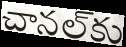
చానల్‌కు